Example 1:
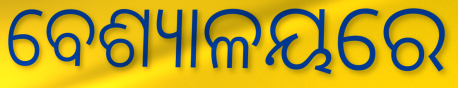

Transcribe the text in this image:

ବେଶ୍ୟାଳୟରେ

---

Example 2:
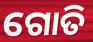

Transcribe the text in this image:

ଗୋତି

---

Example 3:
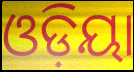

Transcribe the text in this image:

ଓଡ଼ିୟା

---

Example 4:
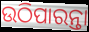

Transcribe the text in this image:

ଉଠିପାରନ୍ତା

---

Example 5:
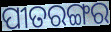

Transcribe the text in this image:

ପୀତରଙ୍ଗର